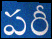
పరీ